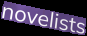
novelists